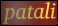
patali